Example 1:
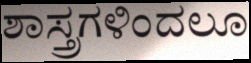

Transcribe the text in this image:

ಶಾಸ್ತ್ರಗಳಿಂದಲೂ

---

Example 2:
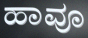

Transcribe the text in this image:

ಹಾವೂ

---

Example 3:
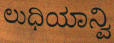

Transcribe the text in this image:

ಲುಧಿಯಾನ್ವಿ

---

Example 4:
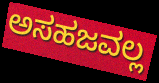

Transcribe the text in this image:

ಅಸಹಜವಲ್ಲ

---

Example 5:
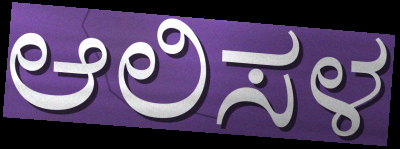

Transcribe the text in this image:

ಆಲಿಸಳ